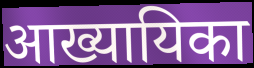
आख्यायिका